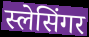
स्लेसिंगर